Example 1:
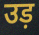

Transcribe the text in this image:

उड़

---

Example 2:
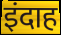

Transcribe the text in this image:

इंदाह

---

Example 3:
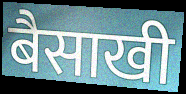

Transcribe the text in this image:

बैसाखी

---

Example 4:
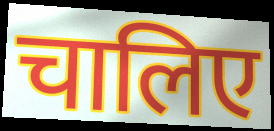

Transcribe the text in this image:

चालिए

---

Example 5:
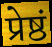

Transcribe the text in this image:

प्रेष्ठं